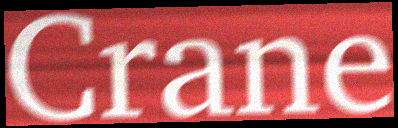
Crane